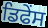
ਡਿਫੇਂਸ